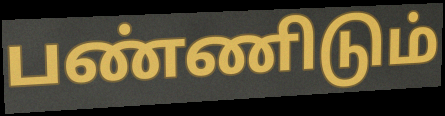
பண்ணிடும்